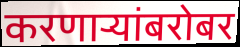
करणार्‍यांबरोबर